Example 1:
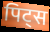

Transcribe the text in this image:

पिट्स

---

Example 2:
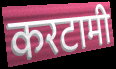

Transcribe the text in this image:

करटामी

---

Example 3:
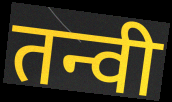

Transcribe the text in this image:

तन्वी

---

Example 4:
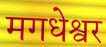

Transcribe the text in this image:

मगधेश्वर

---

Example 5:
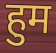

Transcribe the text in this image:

हुम